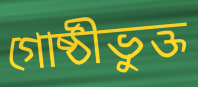
গোষ্ঠীভুক্ত